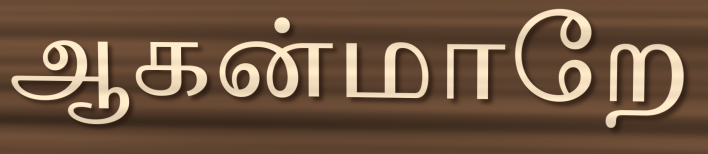
ஆகன்மாறே